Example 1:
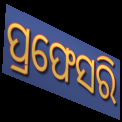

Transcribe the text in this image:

ପ୍ରଫେସରି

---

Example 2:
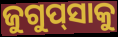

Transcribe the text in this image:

ଜୁଗୁପ୍‍ସାକୁ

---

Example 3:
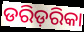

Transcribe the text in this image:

ଡରିଡ଼ରିକା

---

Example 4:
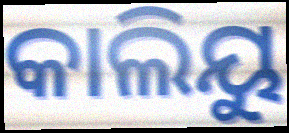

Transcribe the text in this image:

କାଲିୟୁ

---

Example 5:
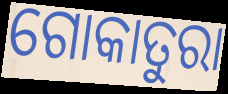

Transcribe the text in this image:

ଗୋକାତୁରା